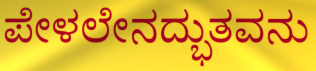
ಪೇಳಲೇನದ್ಭುತವನು